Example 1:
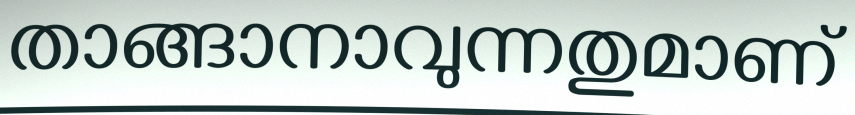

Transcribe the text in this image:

താങ്ങാനാവുന്നതുമാണ്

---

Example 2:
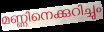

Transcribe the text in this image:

മണ്ണിനെക്കുറിച്ചും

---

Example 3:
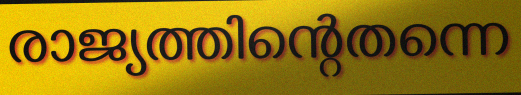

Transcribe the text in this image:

രാജ്യത്തിന്റെതന്നെ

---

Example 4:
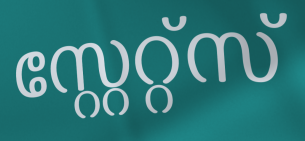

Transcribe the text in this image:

സ്റ്റേറ്റ്സ്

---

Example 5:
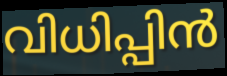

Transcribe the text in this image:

വിധിപ്പിൻ